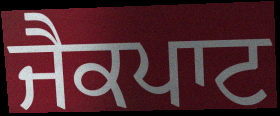
ਜੈਕਪਾਟ